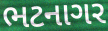
ભટનાગર